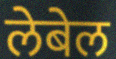
लेबेल